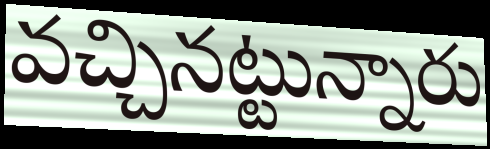
వచ్చినట్టున్నారు